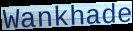
Wankhade